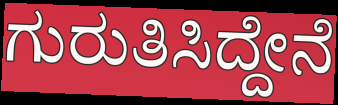
ಗುರುತಿಸಿದ್ದೇನೆ